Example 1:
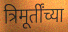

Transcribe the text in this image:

त्रिमूर्तींच्या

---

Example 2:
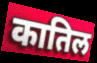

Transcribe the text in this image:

कातिल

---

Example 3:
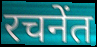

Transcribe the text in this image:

रचनेंत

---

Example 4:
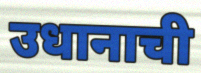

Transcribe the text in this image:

उधानाची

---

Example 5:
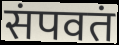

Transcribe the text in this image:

संपवतं